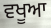
ਵਖੂਆ